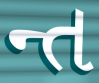
ન્ત